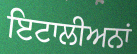
ਇਟਾਲੀਅਨਾਂ